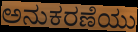
ಅನುಕರಣೆಯು